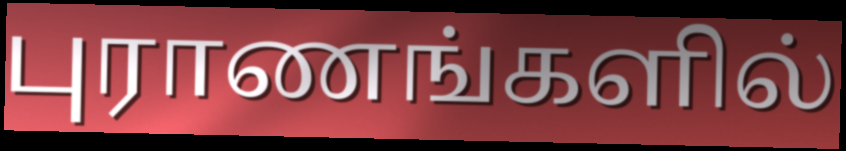
புராணங்களில்